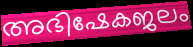
അഭിഷേകജലം